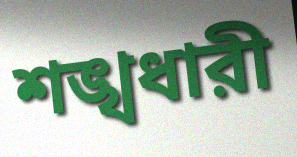
শঙ্খধারী